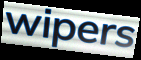
wipers